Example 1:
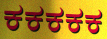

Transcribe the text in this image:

ಕಕಕಕಕ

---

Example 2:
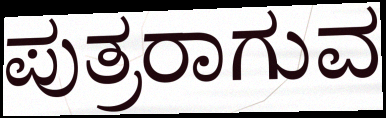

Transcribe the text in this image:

ಪುತ್ರರಾಗುವ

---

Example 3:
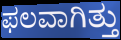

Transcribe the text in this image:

ಫಲವಾಗಿತ್ತು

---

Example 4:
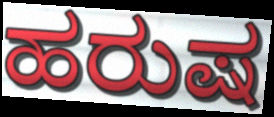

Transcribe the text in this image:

ಹರುಷ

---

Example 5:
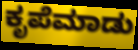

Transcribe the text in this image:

ಕೃಪೆಮಾಡು